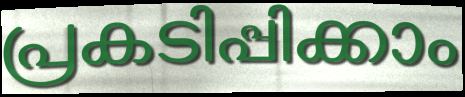
പ്രകടിപ്പിക്കാം